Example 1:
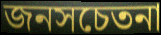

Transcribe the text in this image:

জনসচেতনা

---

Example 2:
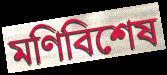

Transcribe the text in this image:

মণিবিশেষ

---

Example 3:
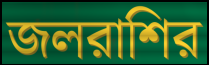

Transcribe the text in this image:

জলরাশির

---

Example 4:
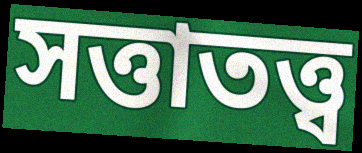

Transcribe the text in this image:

সত্তাতত্ত্ব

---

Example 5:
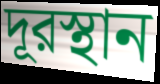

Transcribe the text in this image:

দূরস্থান